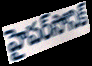
హైపర్‌సోనిక్